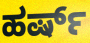
ಹರ್ಷ್